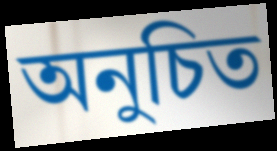
অনুচিত